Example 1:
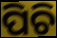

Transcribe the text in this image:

ପିଚି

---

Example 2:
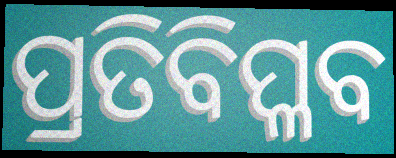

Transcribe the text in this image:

ପ୍ରତିବିପ୍ଳବ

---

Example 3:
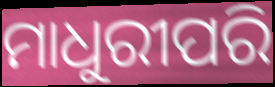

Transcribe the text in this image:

ମାଧୁରୀପରି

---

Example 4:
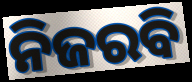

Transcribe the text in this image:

ନିଜରବି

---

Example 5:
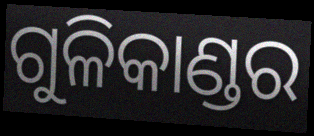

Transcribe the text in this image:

ଗୁଳିକାଣ୍ଡର